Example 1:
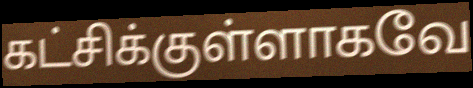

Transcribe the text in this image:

கட்சிக்குள்ளாகவே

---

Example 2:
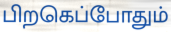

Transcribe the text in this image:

பிறகெப்போதும்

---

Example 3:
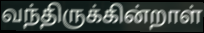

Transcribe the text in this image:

வந்திருக்கின்றாள்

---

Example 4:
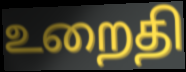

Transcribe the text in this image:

உறைதி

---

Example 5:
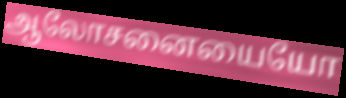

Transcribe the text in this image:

ஆலோசனையையோ